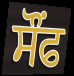
ਸੌਂਫ